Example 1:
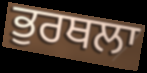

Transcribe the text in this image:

ਭੁਰਥਲਾ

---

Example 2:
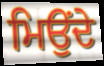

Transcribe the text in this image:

ਮਿਉਂਦੇ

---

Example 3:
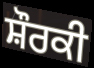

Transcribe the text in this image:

ਸ਼ੌਰਕੀ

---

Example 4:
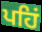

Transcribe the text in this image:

ਪਹਿਂ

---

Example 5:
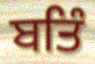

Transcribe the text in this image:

ਬਤਿੰ